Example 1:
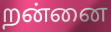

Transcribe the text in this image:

றன்னை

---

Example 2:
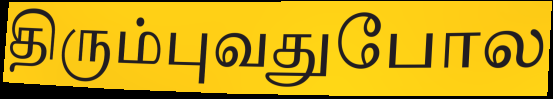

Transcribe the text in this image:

திரும்புவதுபோல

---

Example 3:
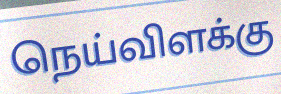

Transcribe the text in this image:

நெய்விளக்கு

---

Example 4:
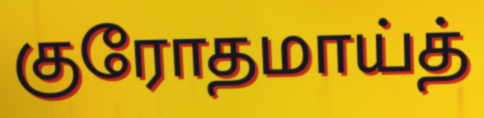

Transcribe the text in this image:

குரோதமாய்த்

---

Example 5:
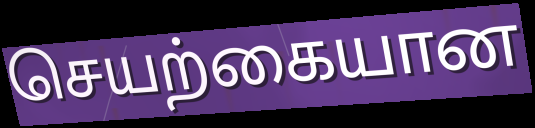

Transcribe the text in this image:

செயற்கையான